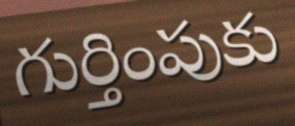
గుర్తింపుకు